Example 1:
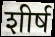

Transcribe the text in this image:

शीर्ष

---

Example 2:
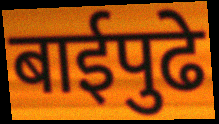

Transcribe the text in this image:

बाईपुढे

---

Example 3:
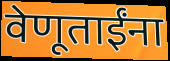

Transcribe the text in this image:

वेणूताईंना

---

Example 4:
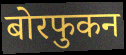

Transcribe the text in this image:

बोरफुकन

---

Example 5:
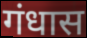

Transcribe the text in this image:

गंधास